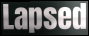
Lapsed